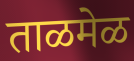
ताळमेळ